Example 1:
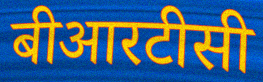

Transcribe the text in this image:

बीआरटीसी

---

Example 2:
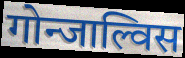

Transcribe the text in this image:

गोन्जाल्विस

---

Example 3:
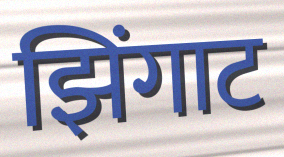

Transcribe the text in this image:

झिंगाट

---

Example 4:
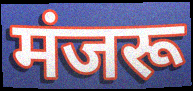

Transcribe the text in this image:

मंजरू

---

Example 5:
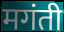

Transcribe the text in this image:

मगंती